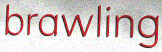
brawling